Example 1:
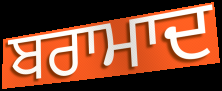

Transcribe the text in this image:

ਬਰਾਮਾਦ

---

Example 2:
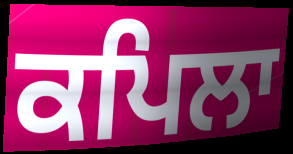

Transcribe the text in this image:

ਕਪਿਲਾ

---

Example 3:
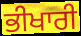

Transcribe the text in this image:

ਭੀਖਾਰੀ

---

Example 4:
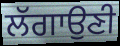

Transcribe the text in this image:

ਲੱਗਾਉਣੀ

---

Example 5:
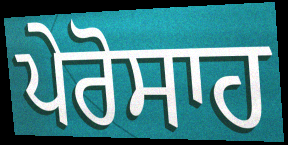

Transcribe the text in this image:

ਪੇਰੋਸਾਹ